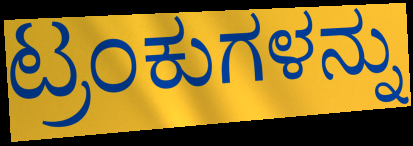
ಟ್ರಂಕುಗಳನ್ನು